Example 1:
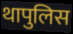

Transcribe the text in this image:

थापुलिस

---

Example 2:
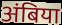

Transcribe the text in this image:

अंबिया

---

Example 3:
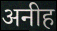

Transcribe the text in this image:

अनीह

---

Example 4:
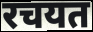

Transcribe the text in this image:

रचयत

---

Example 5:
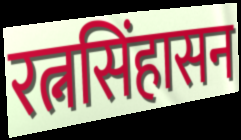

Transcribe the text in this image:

रत्नसिंहासन